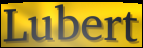
Lubert